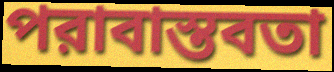
পরাবাস্তবতা